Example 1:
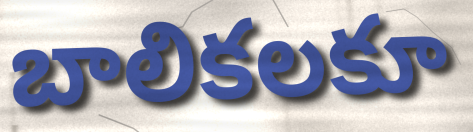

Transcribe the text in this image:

బాలికలకూ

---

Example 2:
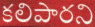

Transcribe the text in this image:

కలిపారని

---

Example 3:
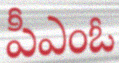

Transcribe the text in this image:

పీఎంఓ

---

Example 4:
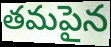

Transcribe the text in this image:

తమపైన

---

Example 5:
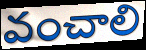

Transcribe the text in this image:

వంచాలి